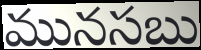
మునసబు